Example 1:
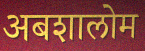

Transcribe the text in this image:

अबशालोम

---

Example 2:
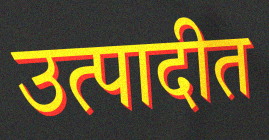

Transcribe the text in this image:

उत्पादीत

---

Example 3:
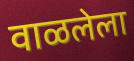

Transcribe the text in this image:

वाळलेला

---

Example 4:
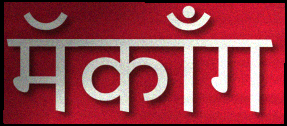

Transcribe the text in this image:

मॅकाँग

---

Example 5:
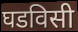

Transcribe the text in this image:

घडविसी